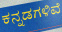
ಕನ್ನಡಗಳಿವೆ